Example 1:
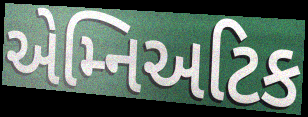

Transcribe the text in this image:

એમ્નિઅટિક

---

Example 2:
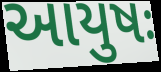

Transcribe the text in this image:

આયુષઃ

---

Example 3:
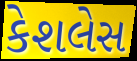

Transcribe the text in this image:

કેશલેસ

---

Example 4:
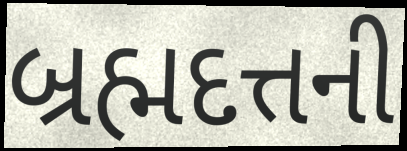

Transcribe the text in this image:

બ્રહ્મદત્તની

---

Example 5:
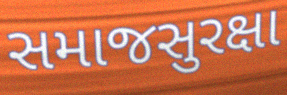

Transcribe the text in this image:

સમાજસુરક્ષા